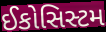
ઈકોસિસ્ટમ